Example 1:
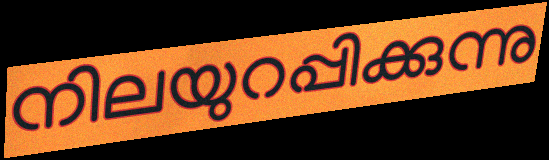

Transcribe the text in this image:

നിലയുറപ്പിക്കുന്നു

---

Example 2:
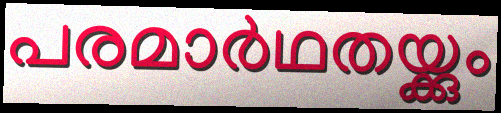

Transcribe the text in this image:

പരമാർഥതയ്ക്കും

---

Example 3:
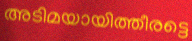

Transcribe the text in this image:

അടിമയായിത്തീരട്ടെ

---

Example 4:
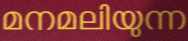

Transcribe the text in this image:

മനമലിയുന്ന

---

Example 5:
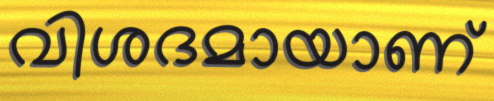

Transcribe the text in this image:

വിശദമായാണ്